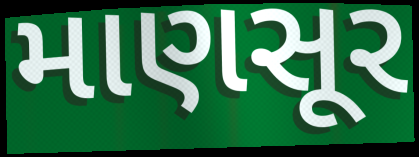
માણસૂર